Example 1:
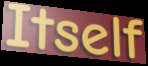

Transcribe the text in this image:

Itself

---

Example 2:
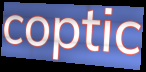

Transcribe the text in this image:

coptic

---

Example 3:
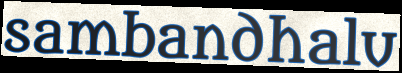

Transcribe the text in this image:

sambandhalu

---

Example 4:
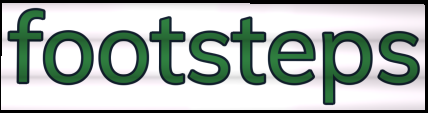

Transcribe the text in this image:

footsteps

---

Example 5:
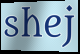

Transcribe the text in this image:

shej